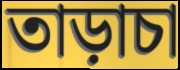
তাড়াচা